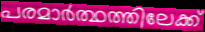
പരമാർത്ഥത്തിലേക്ക്